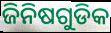
ଜିନିଷଗୁଡିକ